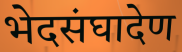
भेदसंघादेण